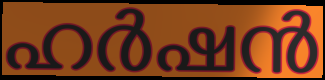
ഹർഷൻ